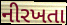
નીરખતા